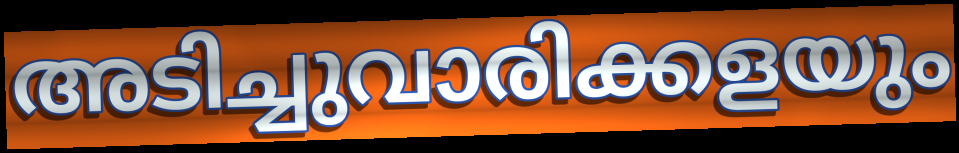
അടിച്ചുവാരിക്കളയും